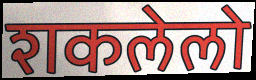
शकलेलो